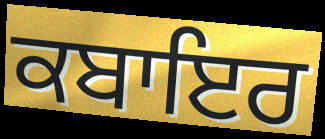
ਕਬਾਇਰ